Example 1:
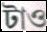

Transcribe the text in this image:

টাও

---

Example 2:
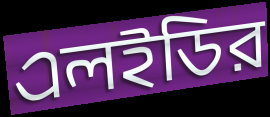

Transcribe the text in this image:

এলইডির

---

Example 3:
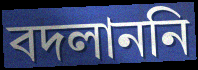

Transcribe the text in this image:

বদলাননি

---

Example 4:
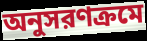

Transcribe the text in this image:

অনুসরণক্রমে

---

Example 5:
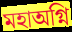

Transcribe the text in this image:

মহাঅগ্নি